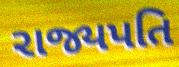
રાજ્યપતિ